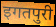
इगतपुरी